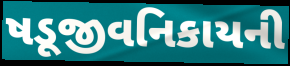
ષડૂજીવનિકાયની